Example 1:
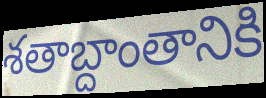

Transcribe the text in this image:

శతాబ్దాంతానికి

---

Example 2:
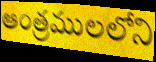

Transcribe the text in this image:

ఆంత్రములలోని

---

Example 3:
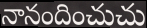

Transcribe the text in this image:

నానందించుచు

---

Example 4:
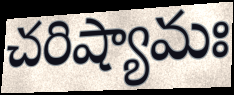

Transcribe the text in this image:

చరిష్యామః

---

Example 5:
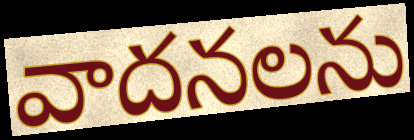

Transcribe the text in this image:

వాదనలను